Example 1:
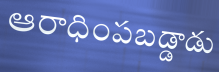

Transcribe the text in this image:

ఆరాధింపబడ్డాడు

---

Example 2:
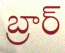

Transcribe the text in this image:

బ్రార్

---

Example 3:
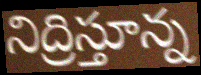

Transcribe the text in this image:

నిద్రిస్తూన్న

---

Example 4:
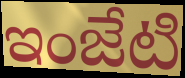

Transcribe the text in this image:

ఇంజేటి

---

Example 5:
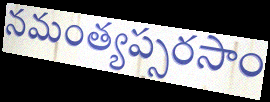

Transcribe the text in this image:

నమంత్యప్సరసాం